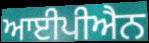
ਆਈਪੀਐਨ